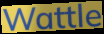
Wattle